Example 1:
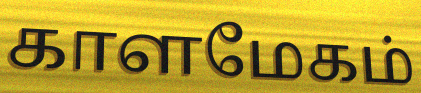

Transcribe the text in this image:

காளமேகம்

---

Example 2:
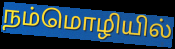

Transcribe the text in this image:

நம்மொழியில்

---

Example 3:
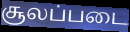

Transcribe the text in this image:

சூலப்படை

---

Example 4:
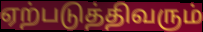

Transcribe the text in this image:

ஏற்படுத்திவரும்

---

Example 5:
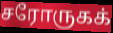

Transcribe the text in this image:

சரோருகக்